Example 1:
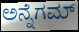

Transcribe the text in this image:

ಅನ್ನೆಗಮ್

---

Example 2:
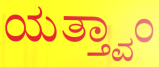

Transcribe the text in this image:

ಯತ್ತ್ವಾಂ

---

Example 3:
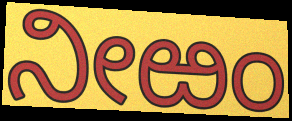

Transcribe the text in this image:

ನೀಱಂ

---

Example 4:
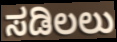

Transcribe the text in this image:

ಸಡಿಲಲು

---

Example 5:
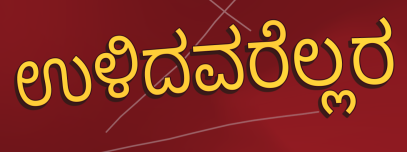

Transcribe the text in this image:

ಉಳಿದವರೆಲ್ಲರ